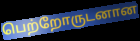
பெற்றோருடனான